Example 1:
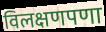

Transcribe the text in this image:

विलक्षणपणा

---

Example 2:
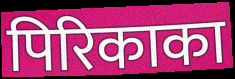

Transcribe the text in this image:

पिरिकाका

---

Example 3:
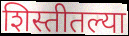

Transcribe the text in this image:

शिस्तीतल्या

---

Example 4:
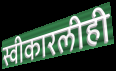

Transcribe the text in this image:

स्वीकारलीही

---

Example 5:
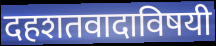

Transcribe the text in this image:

दहशतवादाविषयी